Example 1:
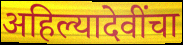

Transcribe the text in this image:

अहिल्यादेवींचा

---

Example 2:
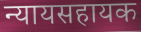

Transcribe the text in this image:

न्यायसहायक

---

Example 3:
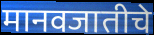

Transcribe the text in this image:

मानवजातीचे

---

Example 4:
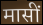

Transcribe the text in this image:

मासीं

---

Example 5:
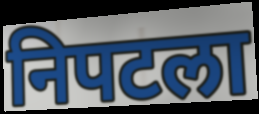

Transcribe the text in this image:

निपटला